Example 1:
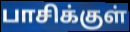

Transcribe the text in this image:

பாசிக்குள்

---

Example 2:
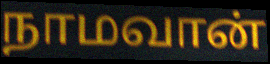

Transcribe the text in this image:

நாமவான்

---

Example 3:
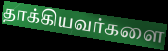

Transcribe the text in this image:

தாக்கியவர்களை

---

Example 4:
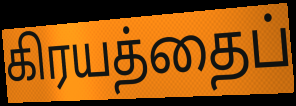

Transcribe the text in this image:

கிரயத்தைப்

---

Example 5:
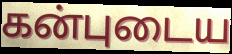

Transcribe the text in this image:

கன்புடைய